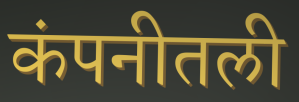
कंपनीतली